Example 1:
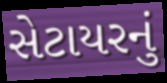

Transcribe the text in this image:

સેટાયરનું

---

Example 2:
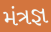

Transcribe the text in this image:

મંત્રજ્ઞ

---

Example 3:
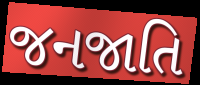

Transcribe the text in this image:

જનજાતિ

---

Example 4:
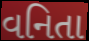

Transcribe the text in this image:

વનિતા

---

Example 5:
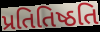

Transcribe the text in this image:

પ્રતિતિષ્ઠતિ